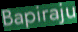
Bapiraju